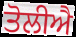
ਤੋਲੀਐ